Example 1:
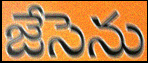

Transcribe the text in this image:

జేసెను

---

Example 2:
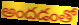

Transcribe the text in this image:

అందడంతో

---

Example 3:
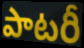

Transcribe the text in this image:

పాటరీ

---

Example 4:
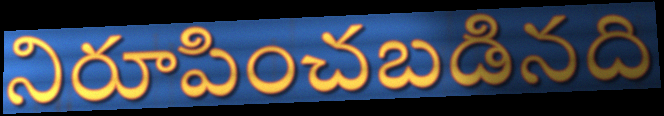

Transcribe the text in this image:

నిరూపించబడినది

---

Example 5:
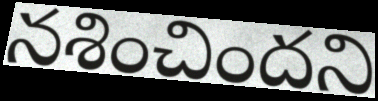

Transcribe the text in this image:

నశించిందని